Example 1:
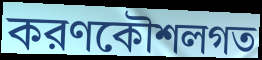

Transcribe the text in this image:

করণকৌশলগত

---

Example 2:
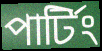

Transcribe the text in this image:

পার্টিং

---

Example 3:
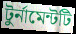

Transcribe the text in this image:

টুর্নামেন্টটি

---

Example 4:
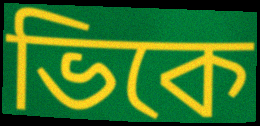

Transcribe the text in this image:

ভিকে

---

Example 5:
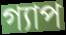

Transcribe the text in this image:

গ্যাপ